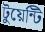
টুয়েন্টি